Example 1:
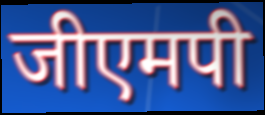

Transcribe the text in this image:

जीएमपी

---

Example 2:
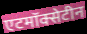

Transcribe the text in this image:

एटमॉक्सेटीन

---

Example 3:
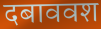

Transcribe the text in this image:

दबाववश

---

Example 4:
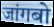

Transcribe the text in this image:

जांगबो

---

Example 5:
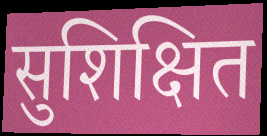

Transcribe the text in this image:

सुशिक्षित